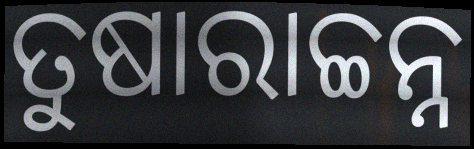
ତୁଷାରାଚ୍ଚନ୍ନ